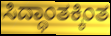
ಸಿದ್ಧಾಂತಕ್ಕಿಂತ